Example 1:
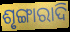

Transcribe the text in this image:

ଶୃଙ୍ଗାରାଦି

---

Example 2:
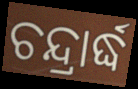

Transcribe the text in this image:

ଚନ୍ଦ୍ରାର୍ଦ୍ଧ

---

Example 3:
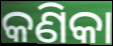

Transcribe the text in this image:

କଣିକା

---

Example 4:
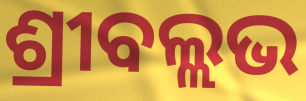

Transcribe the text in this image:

ଶ୍ରୀବଲ୍ଲଭ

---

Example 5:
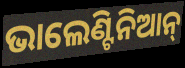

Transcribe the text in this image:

ଭାଲେଣ୍ଟିନିଆନ୍